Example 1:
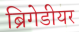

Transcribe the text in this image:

ब्रिगेडीयर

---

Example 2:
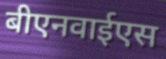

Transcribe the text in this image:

बीएनवाईएस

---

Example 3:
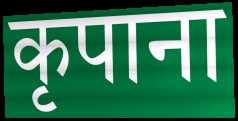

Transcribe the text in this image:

कृपाना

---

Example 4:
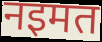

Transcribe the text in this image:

नइमत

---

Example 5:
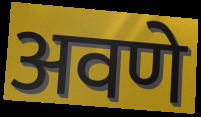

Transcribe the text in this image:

अवणे